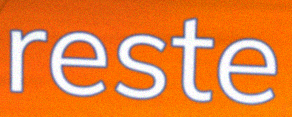
reste